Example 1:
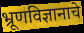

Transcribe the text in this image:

भ्रूणविज्ञानाचे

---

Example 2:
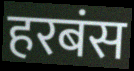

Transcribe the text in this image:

हरबंस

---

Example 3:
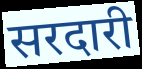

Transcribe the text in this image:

सरदारी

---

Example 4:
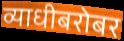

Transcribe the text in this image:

व्याधीबरोबर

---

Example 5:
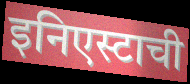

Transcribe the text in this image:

इनिएस्टाची